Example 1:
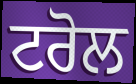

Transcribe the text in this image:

ਟਰੋਲ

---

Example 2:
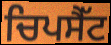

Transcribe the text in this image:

ਚਿਪਸੈੱਟ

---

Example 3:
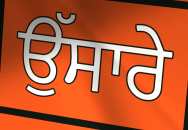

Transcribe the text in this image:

ਉੱਸਾਰੇ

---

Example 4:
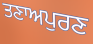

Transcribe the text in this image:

ਤਣਾਅਪੁਰਣ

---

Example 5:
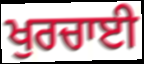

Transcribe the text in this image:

ਖੁਰਚਾਈ